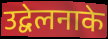
उद्वेलनाके